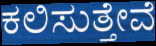
ಕಲಿಸುತ್ತೇವೆ